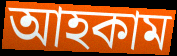
আহকাম